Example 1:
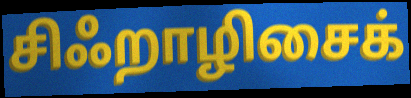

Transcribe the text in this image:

சிஃறாழிசைக்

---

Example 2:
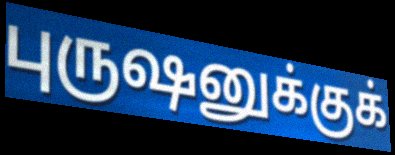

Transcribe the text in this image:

புருஷனுக்குக்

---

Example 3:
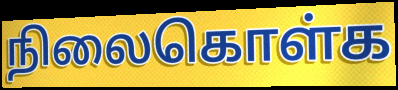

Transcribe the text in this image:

நிலைகொள்க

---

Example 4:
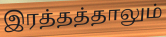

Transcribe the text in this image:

இரத்தத்தாலும்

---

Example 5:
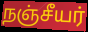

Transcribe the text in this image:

நஞ்சீயர்